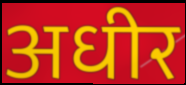
अधीर